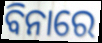
ବିନାରେ